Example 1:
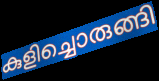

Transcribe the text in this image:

കുളിച്ചൊരുങ്ങി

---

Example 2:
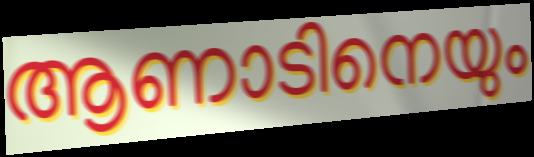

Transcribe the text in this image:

ആണാടിനെയും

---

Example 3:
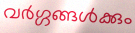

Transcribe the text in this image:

വർഗ്ഗങ്ങൾക്കും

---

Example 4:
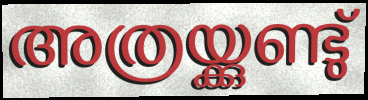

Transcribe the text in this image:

അത്രയ്ക്കുണ്ടു്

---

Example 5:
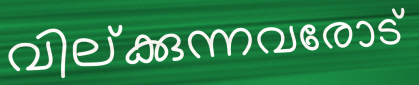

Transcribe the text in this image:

വില്ക്കുന്നവരോട്